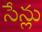
సేన్లు